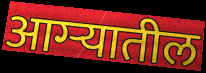
आग्ऱ्यातील